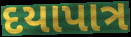
દયાપાત્ર